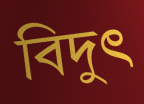
বিদুৎ